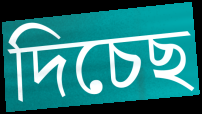
দিচেছ